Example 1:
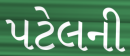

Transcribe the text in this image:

પટેલની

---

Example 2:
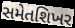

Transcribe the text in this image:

સમેતશિખર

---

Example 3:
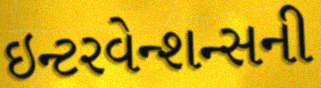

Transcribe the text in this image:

ઇન્ટરવેન્શન્સની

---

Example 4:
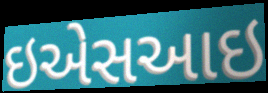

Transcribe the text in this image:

ઇએસઆઇ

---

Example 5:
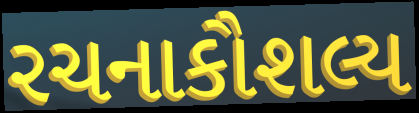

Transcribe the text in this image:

રચનાકૌશલ્ય